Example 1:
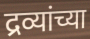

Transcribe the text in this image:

द्रव्यांच्या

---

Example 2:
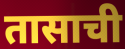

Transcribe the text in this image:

तासाची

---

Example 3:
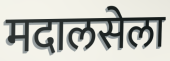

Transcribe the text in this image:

मदालसेला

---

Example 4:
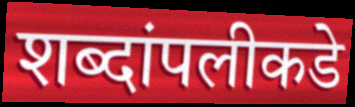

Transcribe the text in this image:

शब्दांपलीकडे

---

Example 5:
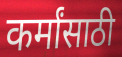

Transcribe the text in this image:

कर्मांसाठी